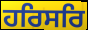
ਹਰਿਸਰਿ